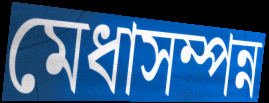
মেধাসম্পন্ন